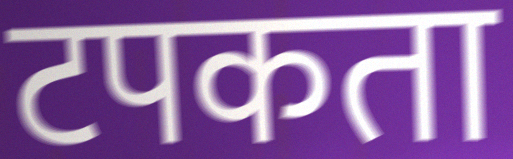
टपकता